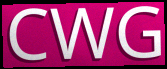
CWG